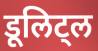
डूलिट्ल